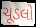
ચૂડલો